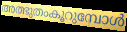
അത്ഭുതംകൂറുമ്പോൾ